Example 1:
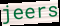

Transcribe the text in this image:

jeers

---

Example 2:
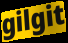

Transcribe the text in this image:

gilgit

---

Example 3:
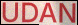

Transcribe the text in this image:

UDAN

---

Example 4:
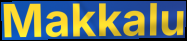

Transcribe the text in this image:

Makkalu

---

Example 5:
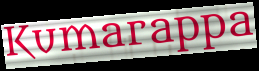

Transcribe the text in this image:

Kumarappa